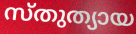
സ്തുത്യായ